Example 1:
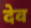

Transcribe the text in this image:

देव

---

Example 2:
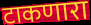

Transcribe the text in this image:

टाकणारा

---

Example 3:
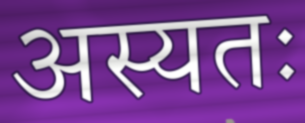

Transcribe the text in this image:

अस्यतः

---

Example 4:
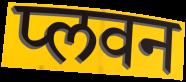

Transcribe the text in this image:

प्लवन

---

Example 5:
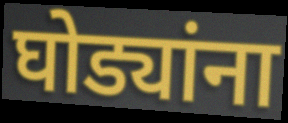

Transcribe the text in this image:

घोड्यांना